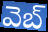
వెబ్